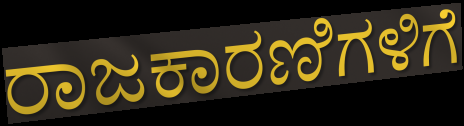
ರಾಜಕಾರಣಿಗಳಿಗೆ